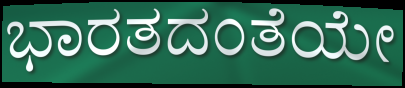
ಭಾರತದಂತೆಯೇ